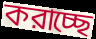
করাচ্ছে